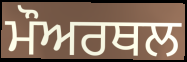
ਮੌਅਰਥਲ